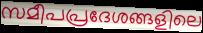
സമീപപ്രദേശങ്ങളിലെ